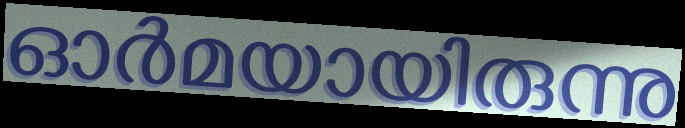
ഓർമയായിരുന്നു